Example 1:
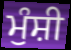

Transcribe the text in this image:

ਮੁੰਸ਼ੀ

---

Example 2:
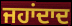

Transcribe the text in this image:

ਜਹਾਂਦਾਦ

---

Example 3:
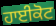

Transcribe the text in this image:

ਹਾਈਕੋਟ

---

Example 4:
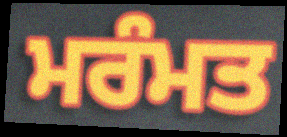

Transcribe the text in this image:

ਮਰੰਮਤ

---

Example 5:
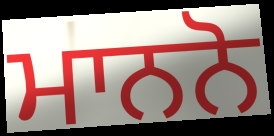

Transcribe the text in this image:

ਮਾਨਨੋ